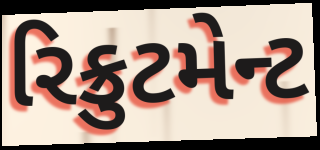
રિક્રુટમેન્ટ